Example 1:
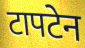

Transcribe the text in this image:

टापटेन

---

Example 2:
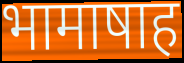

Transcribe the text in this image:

भामाषाह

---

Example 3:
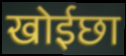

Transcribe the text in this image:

खोईछा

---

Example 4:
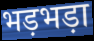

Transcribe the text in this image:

भड़भड़ा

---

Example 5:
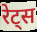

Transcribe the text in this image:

रेट्स